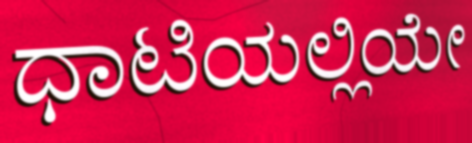
ಧಾಟಿಯಲ್ಲಿಯೇ